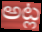
అట్ల